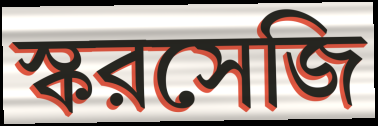
স্করসেজি